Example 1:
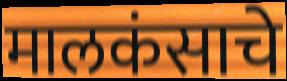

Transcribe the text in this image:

मालकंसाचे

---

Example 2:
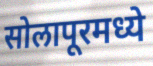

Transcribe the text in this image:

सोलापूरमध्ये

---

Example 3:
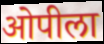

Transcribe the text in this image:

ओपीला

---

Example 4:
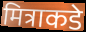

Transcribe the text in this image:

मित्राकडे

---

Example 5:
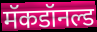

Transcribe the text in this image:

मॅकडॉनल्ड